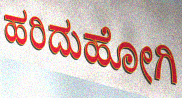
ಹರಿದುಹೋಗಿ